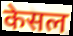
केसल